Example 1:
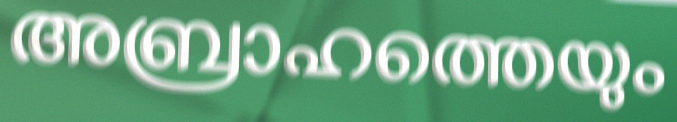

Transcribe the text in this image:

അബ്രാഹത്തെയും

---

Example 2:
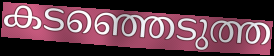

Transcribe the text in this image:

കടഞ്ഞെടുത്ത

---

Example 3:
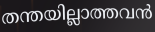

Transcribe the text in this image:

തന്തയില്ലാത്തവൻ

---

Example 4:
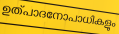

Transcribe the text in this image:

ഉത്പാദനോപാധികളും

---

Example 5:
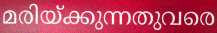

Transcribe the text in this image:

മരിയ്ക്കുന്നതുവരെ